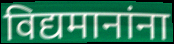
विद्यमानांना